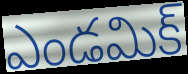
ఎండమిక్